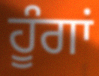
ਹੂੰਗਾਂ